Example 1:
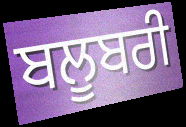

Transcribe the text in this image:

ਬਲੂਬਰੀ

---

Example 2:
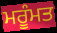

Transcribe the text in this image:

ਮਰੂੰਮਤ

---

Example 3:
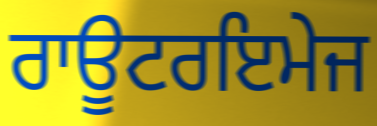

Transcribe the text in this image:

ਰਾਊਟਰਇਮੇਜ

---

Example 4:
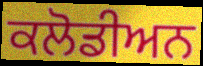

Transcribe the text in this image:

ਕਲੋਡੀਅਨ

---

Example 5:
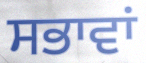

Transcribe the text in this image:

ਸਭਾਵਾਂ